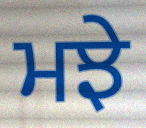
ਮਝੇ